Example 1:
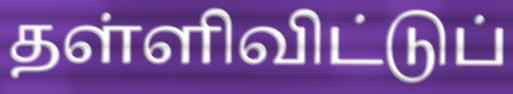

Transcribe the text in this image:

தள்ளிவிட்டுப்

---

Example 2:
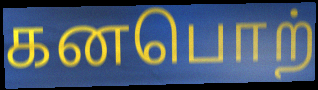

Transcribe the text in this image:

கனபொற்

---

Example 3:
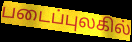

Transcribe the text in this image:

படைப்புலகில்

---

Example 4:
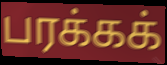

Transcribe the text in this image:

பரக்கக்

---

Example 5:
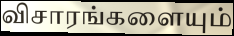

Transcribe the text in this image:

விசாரங்களையும்